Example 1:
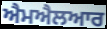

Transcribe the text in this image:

ਐਮਐਲਆਰ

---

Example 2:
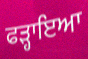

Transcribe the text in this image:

ਫੜ੍ਹਾਇਆ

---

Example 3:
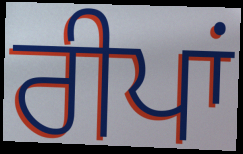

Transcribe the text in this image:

ਰੀਪਾਂ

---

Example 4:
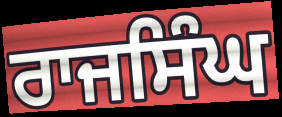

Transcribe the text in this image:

ਰਾਜਸਿੰਘ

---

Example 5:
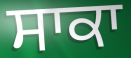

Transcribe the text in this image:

ਸਾਕਾ